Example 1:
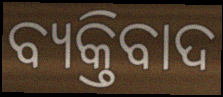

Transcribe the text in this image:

ବ୍ୟକ୍ତିବାଦ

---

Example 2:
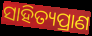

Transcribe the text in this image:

ସାହିତ୍ୟପ୍ରାଣ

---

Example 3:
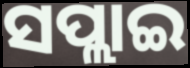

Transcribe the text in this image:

ସପ୍ଲାଇ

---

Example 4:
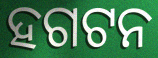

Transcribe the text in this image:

ହଗଟନ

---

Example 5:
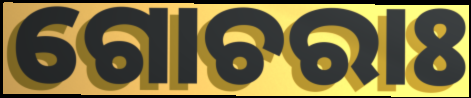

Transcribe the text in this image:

ଗୋଚରାଃ